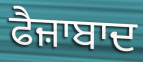
ਫੈਜ਼ਾਬਾਦ